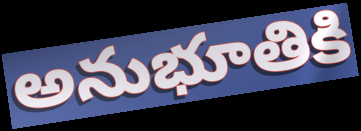
అనుభూతికి